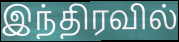
இந்திரவில்